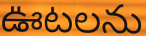
ఊటలను